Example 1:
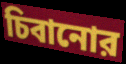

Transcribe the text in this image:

চিবানোর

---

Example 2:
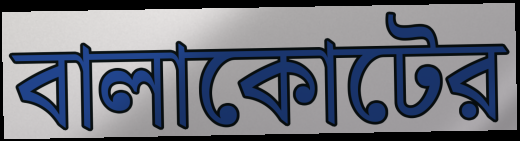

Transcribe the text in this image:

বালাকোটের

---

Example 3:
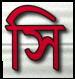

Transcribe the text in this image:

সি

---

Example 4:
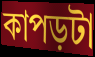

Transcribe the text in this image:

কাপড়টা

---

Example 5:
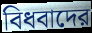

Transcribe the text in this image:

বিধবাদের